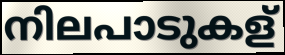
നിലപാടുകള്